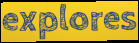
explores